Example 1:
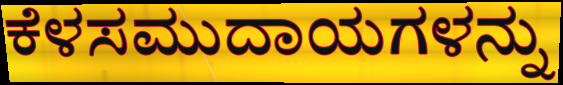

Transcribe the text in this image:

ಕೆಳಸಮುದಾಯಗಳನ್ನು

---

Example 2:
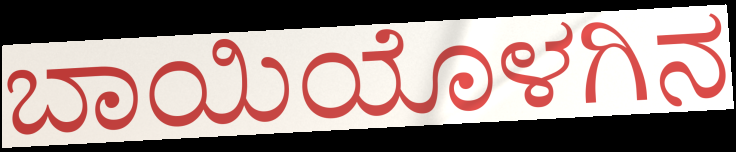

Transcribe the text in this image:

ಬಾಯಿಯೊಳಗಿನ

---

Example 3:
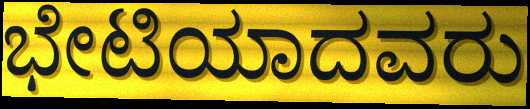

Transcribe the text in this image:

ಭೇಟಿಯಾದವರು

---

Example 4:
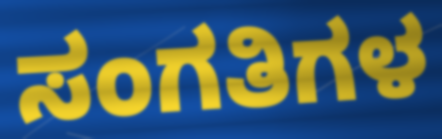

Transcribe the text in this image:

ಸಂಗತಿಗಳ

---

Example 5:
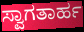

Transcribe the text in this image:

ಸ್ವಾಗತಾರ್ಹ